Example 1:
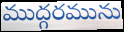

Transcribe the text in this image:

ముద్గరమును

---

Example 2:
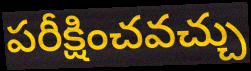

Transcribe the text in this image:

పరీక్షించవచ్చు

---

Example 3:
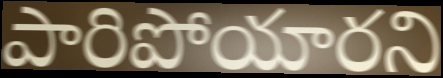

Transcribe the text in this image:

పారిపోయారని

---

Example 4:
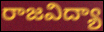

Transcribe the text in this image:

రాజవిద్యా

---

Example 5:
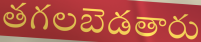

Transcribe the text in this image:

తగలబెడతారు